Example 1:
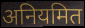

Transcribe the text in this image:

अनियमित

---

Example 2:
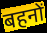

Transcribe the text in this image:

बहनों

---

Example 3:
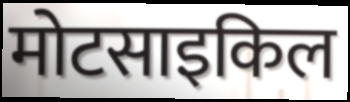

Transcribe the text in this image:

मोटसाइकिल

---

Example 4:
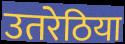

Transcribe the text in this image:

उतरेठिया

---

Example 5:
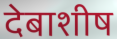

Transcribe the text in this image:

देबाशीष